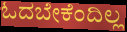
ಓದಬೇಕೆಂದಿಲ್ಲ